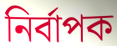
নির্বাপক